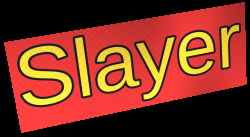
Slayer